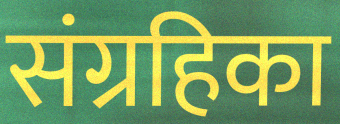
संग्रहिका